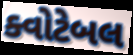
ક્વોટેબલ